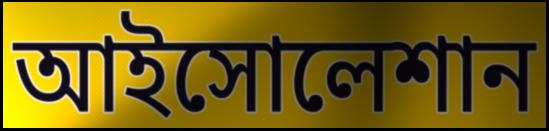
আইসোলেশান